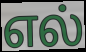
எல்